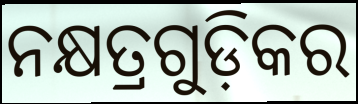
ନକ୍ଷତ୍ରଗୁଡ଼ିକର